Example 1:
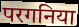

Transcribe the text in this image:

परगनिया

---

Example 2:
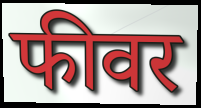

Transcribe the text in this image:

फीवर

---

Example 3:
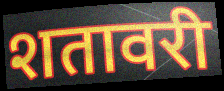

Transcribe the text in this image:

शतावरी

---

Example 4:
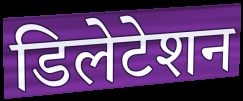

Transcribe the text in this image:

डिलेटेशन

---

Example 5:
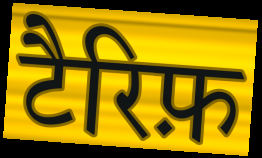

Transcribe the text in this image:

टैरिफ़